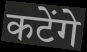
कटेंगे